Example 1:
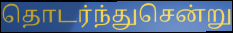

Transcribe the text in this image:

தொடர்ந்துசென்று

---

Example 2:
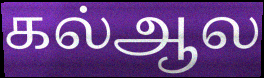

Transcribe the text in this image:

கல்ஆல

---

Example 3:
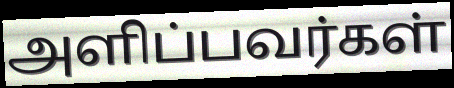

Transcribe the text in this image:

அளிப்பவர்கள்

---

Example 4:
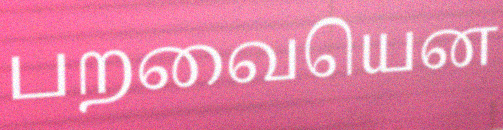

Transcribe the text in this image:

பறவையென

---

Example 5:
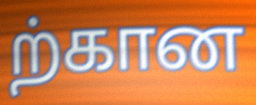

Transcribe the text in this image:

ற்கான